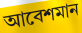
আবেশমান